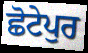
ਛੋਟੇਪੁਰ